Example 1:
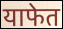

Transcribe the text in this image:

याफेत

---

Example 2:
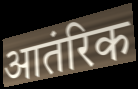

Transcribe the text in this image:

आतंरिक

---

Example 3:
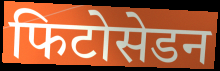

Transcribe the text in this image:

फिटोसेडन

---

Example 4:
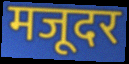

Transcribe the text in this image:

मजूदर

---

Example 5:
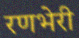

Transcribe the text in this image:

रणभेरी